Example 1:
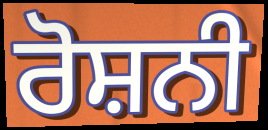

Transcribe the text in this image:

ਰੋਸ਼ਨੀ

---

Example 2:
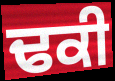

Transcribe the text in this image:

ਢਕੀ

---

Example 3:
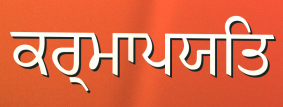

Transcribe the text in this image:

ਕਰ੍ਮਾਪਯਤਿ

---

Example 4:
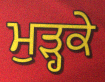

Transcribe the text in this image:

ਮੁੜ੍ਹਕੇ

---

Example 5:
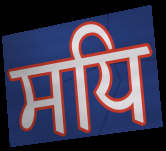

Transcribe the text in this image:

ਸਧਿ